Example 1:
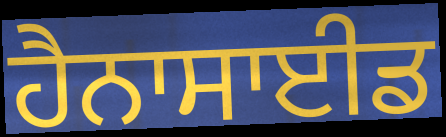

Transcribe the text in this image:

ਹੈਨਾਸਾਈਡ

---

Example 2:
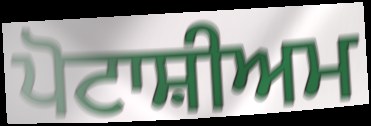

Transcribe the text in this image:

ਪੋਟਾਸ਼ੀਅਮ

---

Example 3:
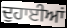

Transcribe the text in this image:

ਦੁਹਾਈਆਂ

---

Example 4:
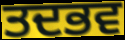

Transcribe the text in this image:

ਤਦਭਵ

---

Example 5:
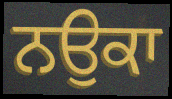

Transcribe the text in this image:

ਨਉਕਾ